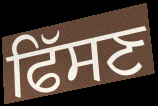
ਫਿੱਸਣ